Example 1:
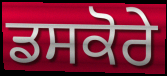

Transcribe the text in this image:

ਡਸਕੋਰੇ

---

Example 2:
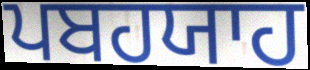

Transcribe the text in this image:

ਪਬਹਯਾਹ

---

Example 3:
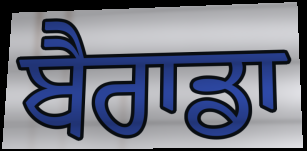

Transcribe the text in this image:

ਬੈਰਾਡਾ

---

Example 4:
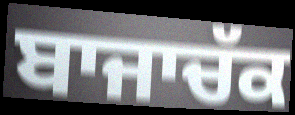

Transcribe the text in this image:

ਬਾਜਾਚੱਕ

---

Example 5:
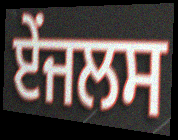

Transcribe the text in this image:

ਏਂਜਲਸ